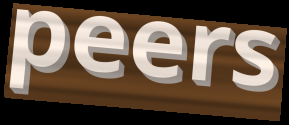
peers